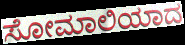
ಸೋಮಾಲಿಯಾದ